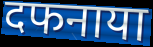
दफनाया